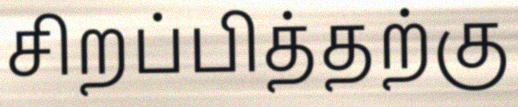
சிறப்பித்தற்கு